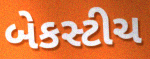
બેકસ્ટીચ